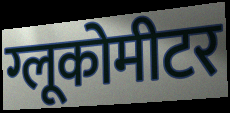
ग्लूकोमीटर